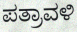
ಪತ್ರಾವಳಿ